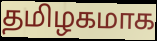
தமிழகமாக